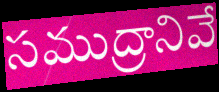
సముద్రానివే